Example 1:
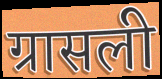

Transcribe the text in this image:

ग्रासली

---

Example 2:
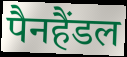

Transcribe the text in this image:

पैनहैंडल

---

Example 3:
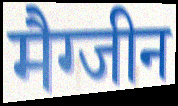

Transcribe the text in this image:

मैग्जीन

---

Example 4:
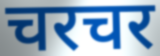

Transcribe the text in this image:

चरचर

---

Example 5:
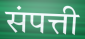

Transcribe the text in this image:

संपत्ती